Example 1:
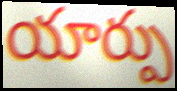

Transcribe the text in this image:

యార్పు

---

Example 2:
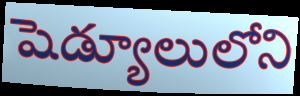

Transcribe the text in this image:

షెడ్యూలులోని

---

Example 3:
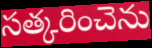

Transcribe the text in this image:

సత్కరించెను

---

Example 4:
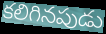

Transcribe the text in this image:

కలిగినపుడు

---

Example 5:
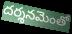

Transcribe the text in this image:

దర్శనమెంతో